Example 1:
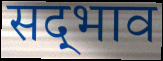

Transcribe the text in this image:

सद्‍भाव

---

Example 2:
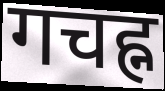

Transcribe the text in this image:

गचह्न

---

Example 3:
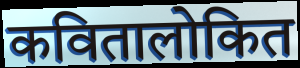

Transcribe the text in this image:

कवितालोकित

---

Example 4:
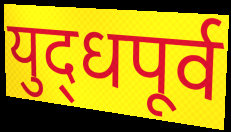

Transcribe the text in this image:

युद्धपूर्व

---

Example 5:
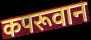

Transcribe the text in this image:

कपरूवान